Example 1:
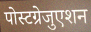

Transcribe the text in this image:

पोस्टग्रेजुएशन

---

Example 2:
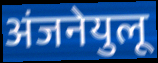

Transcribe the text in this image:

अंजनेयुलू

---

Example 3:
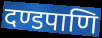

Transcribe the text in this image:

दण्डपाणि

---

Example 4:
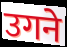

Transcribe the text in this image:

उगने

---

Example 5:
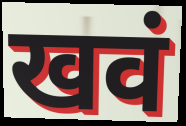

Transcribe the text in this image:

खवं